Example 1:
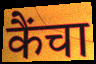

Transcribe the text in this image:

कैंचा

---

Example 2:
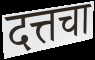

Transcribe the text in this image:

दत्तचा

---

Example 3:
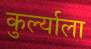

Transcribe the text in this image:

कुर्ल्याला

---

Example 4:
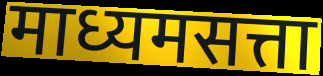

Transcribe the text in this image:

माध्यमसत्ता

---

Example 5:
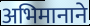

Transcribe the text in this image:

अभिमानाने